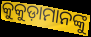
କୁକୁଡ଼ାମାନଙ୍କୁ